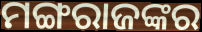
ମଙ୍ଗରାଜଙ୍କର